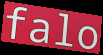
falo